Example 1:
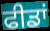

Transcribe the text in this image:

ਫੀਡਾਂ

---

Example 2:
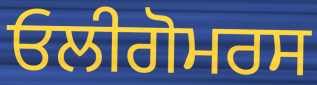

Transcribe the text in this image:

ਓਲੀਗੋਮਰਸ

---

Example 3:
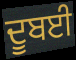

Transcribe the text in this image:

ਦੂਬਈ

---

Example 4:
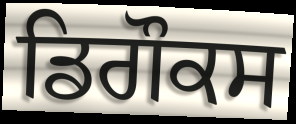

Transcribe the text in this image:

ਡਿਗੌਕਸ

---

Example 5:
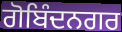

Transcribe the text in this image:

ਗੋਬਿੰਦਨਗਰ